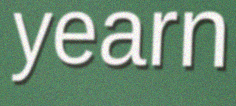
yearn